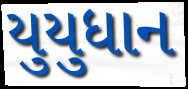
યુયુધાન